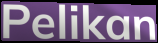
Pelikan